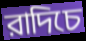
রাদিচে